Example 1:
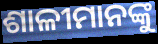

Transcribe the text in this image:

ଶାଳୀମାନଙ୍କୁ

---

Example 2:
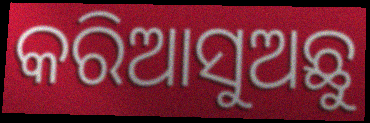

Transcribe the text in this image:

କରିଆସୁଅଛୁ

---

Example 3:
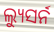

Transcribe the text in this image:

ଲ୍ୟୁସର୍ନ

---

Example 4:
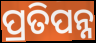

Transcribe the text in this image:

ପ୍ରତିପନ୍ନ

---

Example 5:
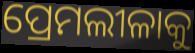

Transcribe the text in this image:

ପ୍ରେମଲୀଳାକୁ